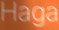
Haga